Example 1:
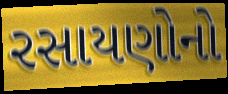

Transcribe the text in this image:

રસાયણોનો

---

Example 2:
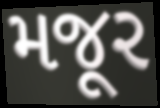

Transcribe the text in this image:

મજૂર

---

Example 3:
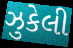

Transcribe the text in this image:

ઝુકેલી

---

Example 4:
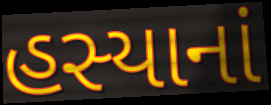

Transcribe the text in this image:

હસ્યાનાં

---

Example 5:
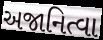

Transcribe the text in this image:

અજાનિત્વા